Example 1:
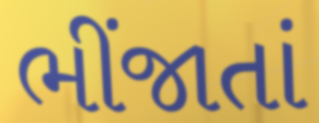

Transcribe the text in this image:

ભીંજાતાં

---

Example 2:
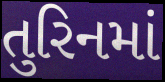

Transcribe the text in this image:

તુરિનમાં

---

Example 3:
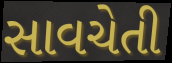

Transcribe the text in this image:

સાવચેતી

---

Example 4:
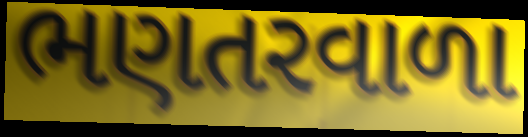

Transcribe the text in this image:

ભણતરવાળા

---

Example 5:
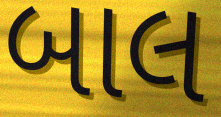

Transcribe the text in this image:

બાલ